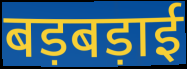
बड़बड़ाई